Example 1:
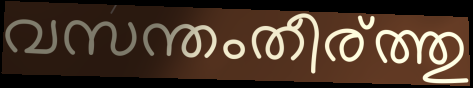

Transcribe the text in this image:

വസന്തംതീര്ത്തു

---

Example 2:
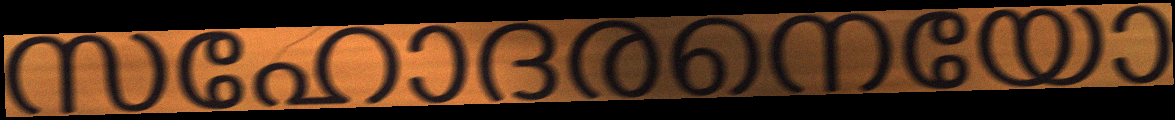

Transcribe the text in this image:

സഹോദരനെയോ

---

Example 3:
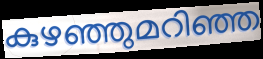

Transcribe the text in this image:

കുഴഞ്ഞുമറിഞ്ഞ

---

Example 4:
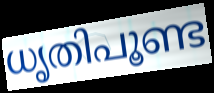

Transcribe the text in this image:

ധൃതിപൂണ്ട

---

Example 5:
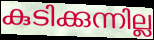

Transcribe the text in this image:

കുടിക്കുന്നില്ല